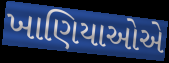
ખાણિયાઓએ